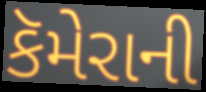
કૅમેરાની